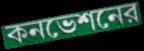
কনভেশনের